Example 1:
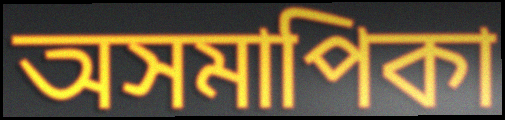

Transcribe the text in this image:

অসমাপিকা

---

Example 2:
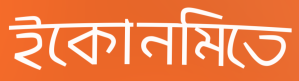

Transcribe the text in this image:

ইকোনমিতে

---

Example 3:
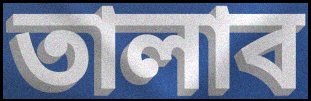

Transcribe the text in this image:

তালাব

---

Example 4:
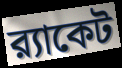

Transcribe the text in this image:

র‍্যাকেট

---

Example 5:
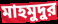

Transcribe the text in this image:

মাহমুদুর